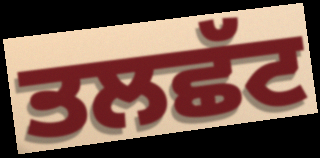
ਤਲਛੱਟ